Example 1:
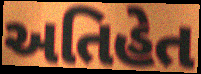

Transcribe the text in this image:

અતિહેત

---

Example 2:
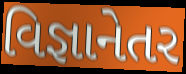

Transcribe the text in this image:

વિજ્ઞાનેતર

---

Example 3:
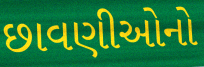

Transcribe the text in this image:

છાવણીઓનો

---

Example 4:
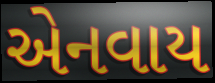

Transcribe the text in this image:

એનવાય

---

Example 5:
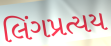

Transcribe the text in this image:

લિંગપ્રત્યય